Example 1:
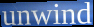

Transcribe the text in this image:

unwind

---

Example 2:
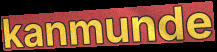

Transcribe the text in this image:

kanmunde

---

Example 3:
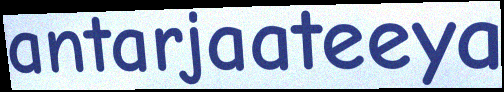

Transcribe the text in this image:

antarjaateeya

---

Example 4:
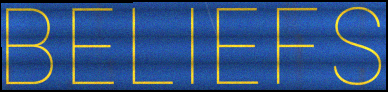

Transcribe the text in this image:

BELIEFS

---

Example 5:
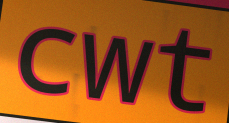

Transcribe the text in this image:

cwt